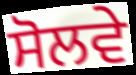
ਸੋਲਵੇ